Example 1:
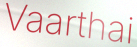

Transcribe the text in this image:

Vaarthai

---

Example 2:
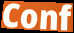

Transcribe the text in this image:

Conf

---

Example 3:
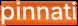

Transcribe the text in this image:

pinnati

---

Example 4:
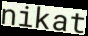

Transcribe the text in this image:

nikat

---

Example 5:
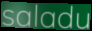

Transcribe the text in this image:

saladu